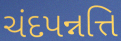
ચંદપન્નત્તિ